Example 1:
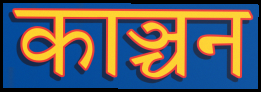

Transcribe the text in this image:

काञ्चन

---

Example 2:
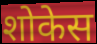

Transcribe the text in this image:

शोकेस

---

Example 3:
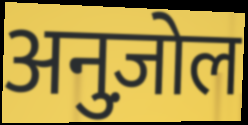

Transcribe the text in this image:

अनुज़ोल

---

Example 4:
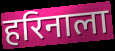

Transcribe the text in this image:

हरिनाला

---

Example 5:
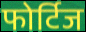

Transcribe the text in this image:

फोर्टिज